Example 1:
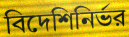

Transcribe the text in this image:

বিদেশিনির্ভর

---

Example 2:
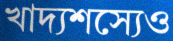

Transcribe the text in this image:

খাদ্যশস্যেও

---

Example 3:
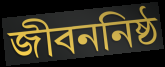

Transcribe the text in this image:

জীবননিষ্ঠ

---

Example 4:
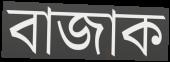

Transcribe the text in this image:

বাজাক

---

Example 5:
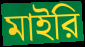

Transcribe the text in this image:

মাইরি